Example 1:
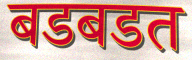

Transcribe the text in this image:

बडबडत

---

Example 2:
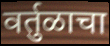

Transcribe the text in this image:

वर्तुळाचा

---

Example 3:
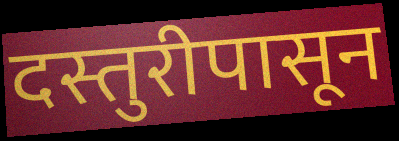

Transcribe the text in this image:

दस्तुरीपासून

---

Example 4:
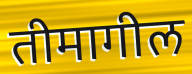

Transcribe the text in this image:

तीमागील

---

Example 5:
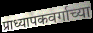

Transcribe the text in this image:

प्राध्यापकवर्गाच्या